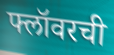
फ्लॉवरची